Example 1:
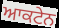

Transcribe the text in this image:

ਆਕਟੇਨ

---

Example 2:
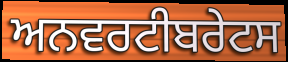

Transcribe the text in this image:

ਅਨਵਰਟੀਬਰੇਟਸ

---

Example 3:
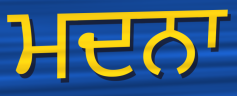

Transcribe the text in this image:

ਮਦਨਾ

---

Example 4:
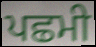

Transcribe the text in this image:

ਪਛਮੀ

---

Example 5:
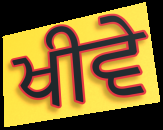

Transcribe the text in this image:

ਖੀਵੇ